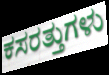
ಕಸರತ್ತುಗಳು